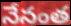
నేనంత